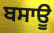
ਬਸਾਊ